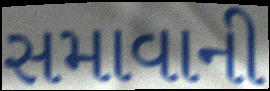
સમાવાની